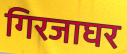
गिरजाघर